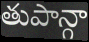
తుపాన్గా